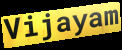
Vijayam